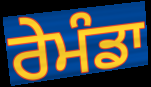
ਰੇਮੰਡਾ